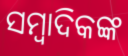
ସମ୍ୱାଦିକଙ୍କ